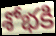
శోభకి